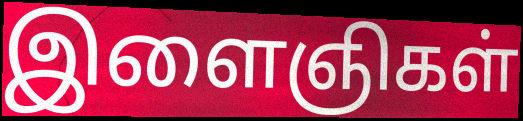
இளைஞிகள்